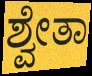
ಶ್ವೇತಾ